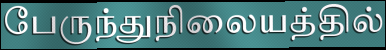
பேருந்துநிலையத்தில்